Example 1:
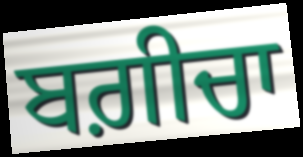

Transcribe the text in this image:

ਬਗ਼ੀਚਾ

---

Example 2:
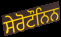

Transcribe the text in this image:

ਸੇਰੋਟੌਨਿਨ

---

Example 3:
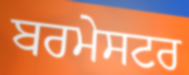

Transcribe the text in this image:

ਬਰਮੇਸਟਰ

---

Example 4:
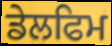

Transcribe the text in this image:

ਡੇਲਫਿਮ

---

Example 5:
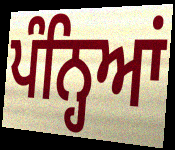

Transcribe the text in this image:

ਪੰਨ੍ਹਿਆਂ